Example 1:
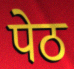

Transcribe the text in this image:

पेठ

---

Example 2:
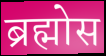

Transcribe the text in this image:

ब्रह्मोस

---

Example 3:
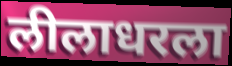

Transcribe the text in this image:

लीलाधरला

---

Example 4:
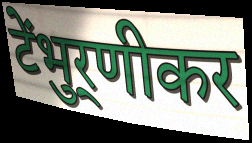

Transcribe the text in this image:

टेंभुर्णीकर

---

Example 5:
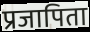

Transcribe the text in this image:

प्रजापिता